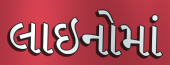
લાઇનોમાં